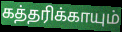
கத்தரிக்காயும்